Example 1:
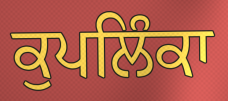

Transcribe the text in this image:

ਕੁਪਲਿੰਕਾ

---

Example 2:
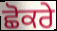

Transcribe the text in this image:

ਛੋਕਰੇ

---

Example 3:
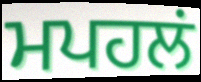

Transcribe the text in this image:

ਮਪਹਲਂ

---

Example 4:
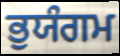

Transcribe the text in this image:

ਭੁਯੰਗਮ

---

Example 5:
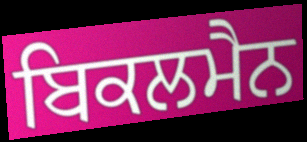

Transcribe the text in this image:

ਬਿਕਲਮੈਨ